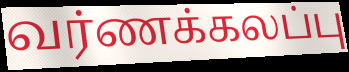
வர்ணக்கலப்பு